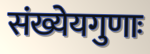
संख्येयगुणाः